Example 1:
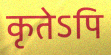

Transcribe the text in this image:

कृतेऽपि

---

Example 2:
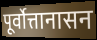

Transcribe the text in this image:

पूर्वोत्तानासन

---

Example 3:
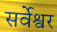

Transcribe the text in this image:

सर्वेश्वर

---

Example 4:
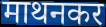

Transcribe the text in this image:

माथनकर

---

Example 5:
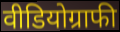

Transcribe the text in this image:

वीडियोग्राफी